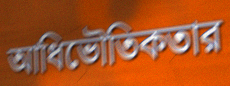
আধিভৌতিকতার